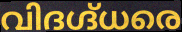
വിദഗ്ദ്ധരെ